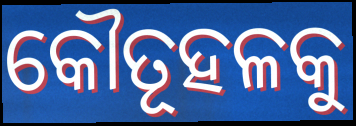
କୌତୂହଳକୁ